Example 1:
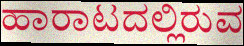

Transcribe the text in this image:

ಹಾರಾಟದಲ್ಲಿರುವ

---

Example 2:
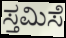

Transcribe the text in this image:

ಸ್ತಮಿಸೆ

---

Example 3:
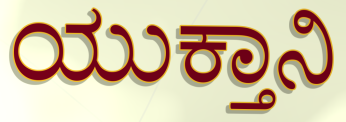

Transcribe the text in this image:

ಯುಕ್ತಾನಿ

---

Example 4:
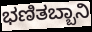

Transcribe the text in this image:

ಭಣಿತಬ್ಬಾನಿ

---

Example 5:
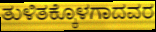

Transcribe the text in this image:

ತುಳಿತಕ್ಕೊಳಗಾದವರ